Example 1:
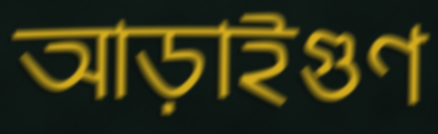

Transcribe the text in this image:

আড়াইগুণ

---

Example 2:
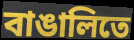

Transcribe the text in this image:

বাঙালিতে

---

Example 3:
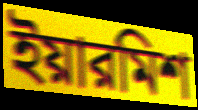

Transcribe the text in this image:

ইয়ারমিশ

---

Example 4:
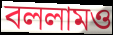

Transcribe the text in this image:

বললামও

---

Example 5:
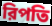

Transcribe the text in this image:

রিপতি